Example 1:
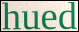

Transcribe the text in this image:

hued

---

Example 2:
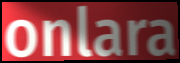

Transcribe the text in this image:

onlara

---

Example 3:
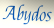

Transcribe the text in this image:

Abydos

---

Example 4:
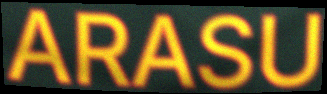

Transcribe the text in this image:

ARASU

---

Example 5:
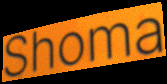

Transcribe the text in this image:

Shoma